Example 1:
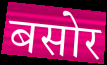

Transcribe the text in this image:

बसोर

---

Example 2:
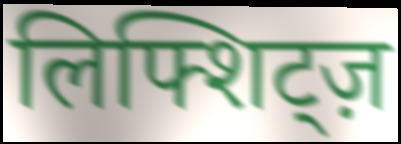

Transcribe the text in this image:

लिफ्शिट्ज़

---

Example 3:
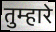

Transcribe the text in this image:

तुम्हारे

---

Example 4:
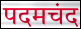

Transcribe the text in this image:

पदमचंद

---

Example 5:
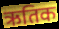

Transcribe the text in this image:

ऋतिक